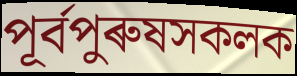
পূৰ্বপুৰুষসকলক